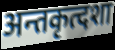
अन्तकृत्दशा